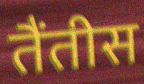
तैंतीस